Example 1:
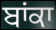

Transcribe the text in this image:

ਬਾਂਕਾ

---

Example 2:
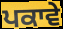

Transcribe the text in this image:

ਪਕਾਵੇ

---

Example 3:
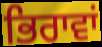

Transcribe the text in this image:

ਭਿਰਾਵਾਂ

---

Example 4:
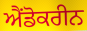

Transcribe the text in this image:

ਐਂਡੋਕਰੀਨ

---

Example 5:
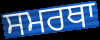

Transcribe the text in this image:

ਸਮਰਥਾ